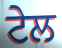
ਟੇਲ